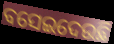
ବସେଇଦେଉଛି